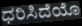
ಧರಿಸಿದೆಯೊ